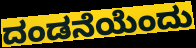
ದಂಡನೆಯೆಂದು